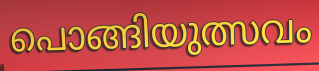
പൊങ്ങിയുത്സവം